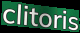
clitoris